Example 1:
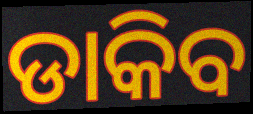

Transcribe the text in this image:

ଡାକିବ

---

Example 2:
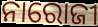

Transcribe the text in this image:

ନାରୋଜୀ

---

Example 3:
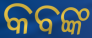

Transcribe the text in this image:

କବଙ୍କ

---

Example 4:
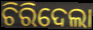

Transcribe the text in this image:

ଚିରିଦେଲା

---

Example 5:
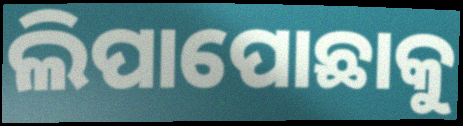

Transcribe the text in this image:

ଲିପାପୋଛାକୁ